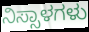
ನಿಸ್ಸಾಳಗಳು